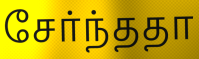
சேர்ந்ததா